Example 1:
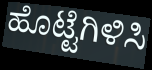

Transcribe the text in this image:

ಹೊಟ್ಟೆಗಿಳಿಸಿ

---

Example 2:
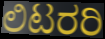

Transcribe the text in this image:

ಲಿಟರರಿ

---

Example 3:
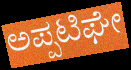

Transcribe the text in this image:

ಅಪ್ಪಟಿಘೇ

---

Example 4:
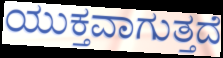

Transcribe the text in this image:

ಯುಕ್ತವಾಗುತ್ತದೆ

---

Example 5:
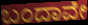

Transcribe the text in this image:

ಬಂದಾವೇ